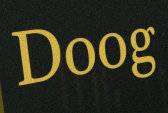
Doog